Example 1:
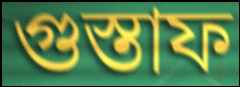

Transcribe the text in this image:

গুস্তাফ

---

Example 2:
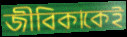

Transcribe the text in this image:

জীবিকাকেই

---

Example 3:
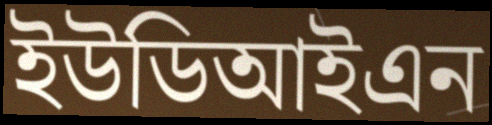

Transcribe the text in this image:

ইউডিআইএন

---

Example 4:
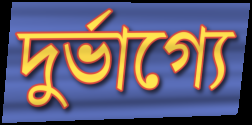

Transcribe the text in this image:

দুর্ভাগ্যে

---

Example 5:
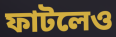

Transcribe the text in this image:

ফাটলেও